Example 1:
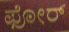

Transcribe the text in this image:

ಫೋರ್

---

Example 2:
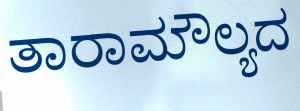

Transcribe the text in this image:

ತಾರಾಮೌಲ್ಯದ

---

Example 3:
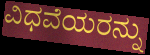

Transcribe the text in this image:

ವಿಧವೆಯರನ್ನು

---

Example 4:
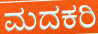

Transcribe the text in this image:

ಮದಕರಿ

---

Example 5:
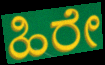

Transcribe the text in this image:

ಹಿರೇ